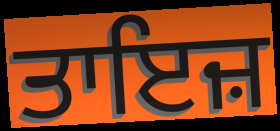
ਤਾਇਜ਼